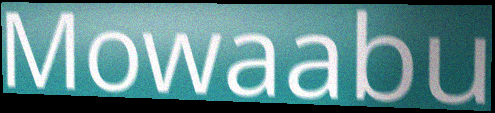
Mowaabu